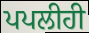
ਪਪਲੀਹੀ